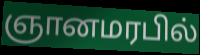
ஞானமரபில்